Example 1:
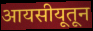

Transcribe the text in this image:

आयसीयूतून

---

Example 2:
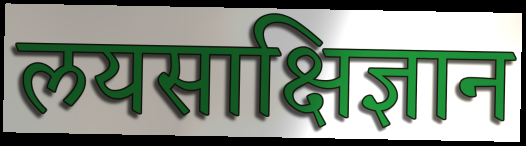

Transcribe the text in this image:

लयसाक्षिज्ञान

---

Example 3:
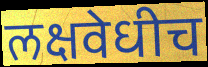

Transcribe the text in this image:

लक्षवेधीच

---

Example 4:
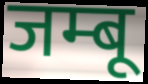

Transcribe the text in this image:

जम्बू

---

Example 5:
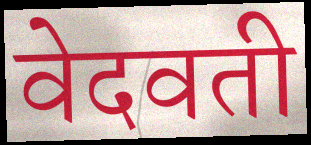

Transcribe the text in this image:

वेदवती